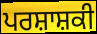
ਪਰਸ਼ਾਸ਼ਕੀ